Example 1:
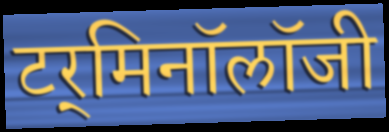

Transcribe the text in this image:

टर्मिनॉलॉजी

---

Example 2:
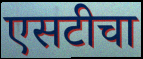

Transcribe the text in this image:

एसटीचा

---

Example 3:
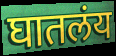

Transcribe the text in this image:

घातलंय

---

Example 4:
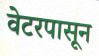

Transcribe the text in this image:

वेटरपासून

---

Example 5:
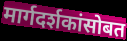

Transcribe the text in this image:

मार्गदर्शकांसोबत